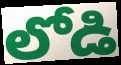
లోడి